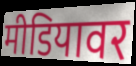
मीडियावर